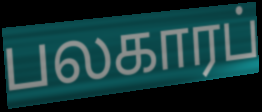
பலகாரப்